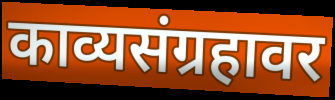
काव्यसंग्रहावर